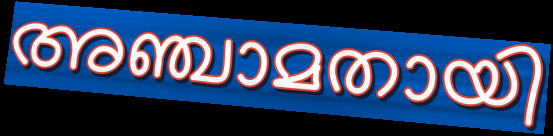
അഞ്ചാമതായി